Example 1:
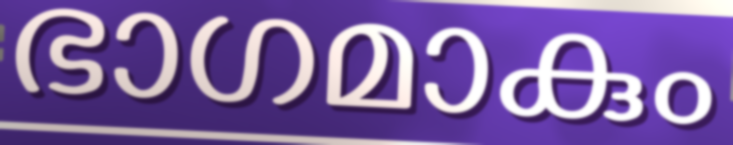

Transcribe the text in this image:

ഭാഗമാകും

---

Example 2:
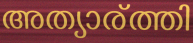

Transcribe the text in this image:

അത്യാര്ത്തി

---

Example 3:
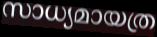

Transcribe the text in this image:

സാധ്യമായത്ര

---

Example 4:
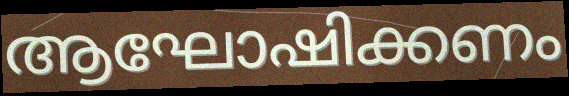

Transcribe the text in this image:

ആഘോഷിക്കണം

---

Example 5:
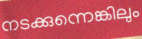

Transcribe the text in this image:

നടക്കുന്നെങ്കിലും